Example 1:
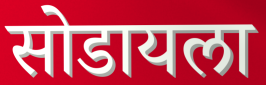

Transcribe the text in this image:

सोडायला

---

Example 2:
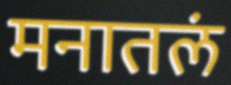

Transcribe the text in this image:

मनातलं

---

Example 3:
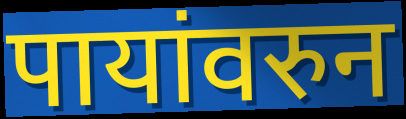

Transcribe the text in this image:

पायांवरुन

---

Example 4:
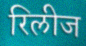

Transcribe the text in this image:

रिलीज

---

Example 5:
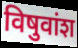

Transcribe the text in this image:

विषुवांश